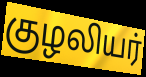
குழலியர்